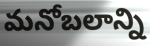
మనోబలాన్ని